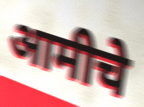
आमीचे